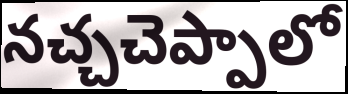
నచ్చచెప్పాలో